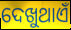
ଦେଖୁଥାଏଁ